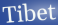
Tibet